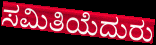
ಸಮಿತಿಯೆದುರು